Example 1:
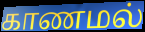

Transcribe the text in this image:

காணமல்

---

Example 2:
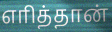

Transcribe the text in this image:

எரித்தான்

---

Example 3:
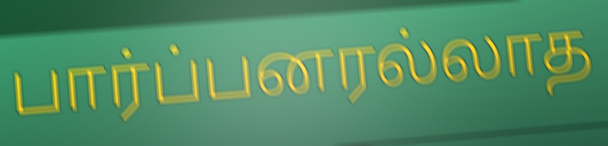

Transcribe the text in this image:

பார்ப்பனரல்லாத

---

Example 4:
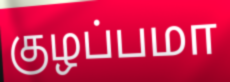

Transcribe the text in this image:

குழப்பமா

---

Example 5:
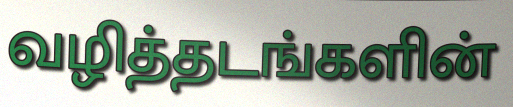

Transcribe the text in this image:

வழித்தடங்களின்